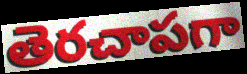
తెరచాపగా